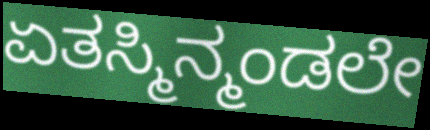
ಏತಸ್ಮಿನ್ಮಂಡಲೇ